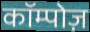
कॉम्पोज़